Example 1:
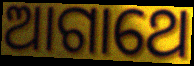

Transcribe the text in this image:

ଆଗାଥେ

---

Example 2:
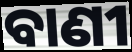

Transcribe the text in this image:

ବାଣୀ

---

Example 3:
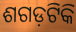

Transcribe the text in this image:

ଶଗଡ଼ଟିକି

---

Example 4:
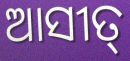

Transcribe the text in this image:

ଆସୀତ୍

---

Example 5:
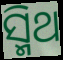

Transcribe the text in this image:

ସ୍ମିଥ